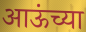
आऊंच्या